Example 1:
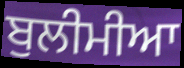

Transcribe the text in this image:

ਬੁਲੀਮੀਆ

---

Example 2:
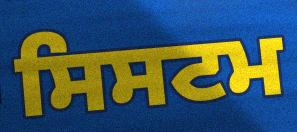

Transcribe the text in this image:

ਸਿਸਟਮ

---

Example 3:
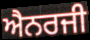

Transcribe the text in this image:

ਐਨਰਜੀ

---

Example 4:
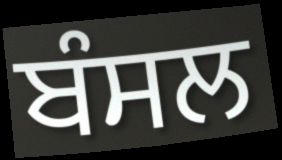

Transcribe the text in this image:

ਬੰਸਲ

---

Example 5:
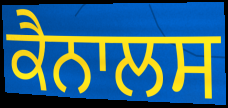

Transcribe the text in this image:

ਕੈਨਾਲਸ